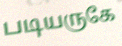
படியருகே